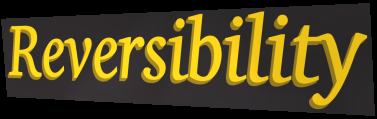
Reversibility